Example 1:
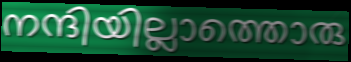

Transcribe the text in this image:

നന്ദിയില്ലാത്തൊരു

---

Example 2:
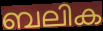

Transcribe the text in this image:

ബലിക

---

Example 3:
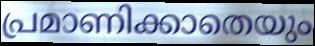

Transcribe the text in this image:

പ്രമാണിക്കാതെയും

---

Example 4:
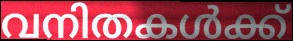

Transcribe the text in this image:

വനിതകൾക്ക്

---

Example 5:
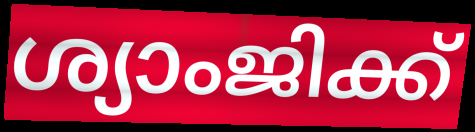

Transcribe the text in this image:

ശ്യാംജിക്ക്